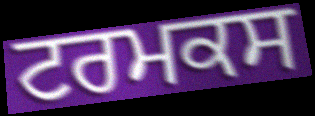
ਟਰਮਕਸ